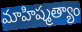
మాహిష్మత్యాం